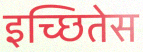
इच्छितेस